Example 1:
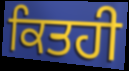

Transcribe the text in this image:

ਕਿਤਹੀ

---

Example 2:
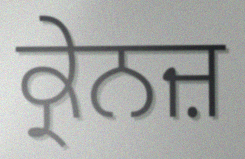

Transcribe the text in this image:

ਕ੍ਰੇਨਜ਼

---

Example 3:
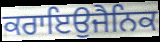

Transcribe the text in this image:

ਕਰਾਇਉਜੈਨਿਕ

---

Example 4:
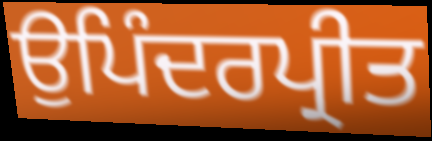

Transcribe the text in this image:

ਉਪਿੰਦਰਪ੍ਰੀਤ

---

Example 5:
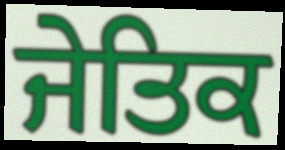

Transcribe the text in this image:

ਜੇਤਿਕ